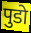
पुडो